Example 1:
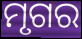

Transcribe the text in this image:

ମୃଗର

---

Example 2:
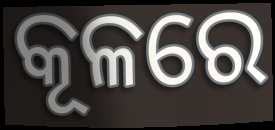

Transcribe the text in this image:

କୂଳରେ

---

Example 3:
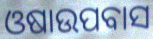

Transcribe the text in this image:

ଓଷାଉପବାସ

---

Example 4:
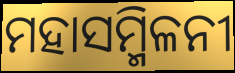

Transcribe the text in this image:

ମହାସମ୍ମିଳନୀ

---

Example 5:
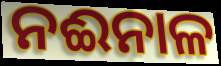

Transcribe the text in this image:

ନଈନାଳ